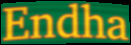
Endha